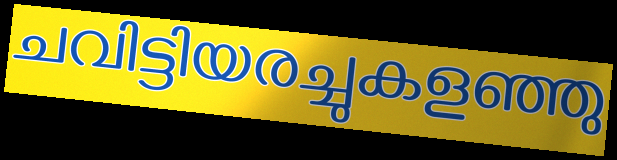
ചവിട്ടിയരച്ചുകളഞ്ഞു